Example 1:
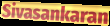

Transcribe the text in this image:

Sivasankaran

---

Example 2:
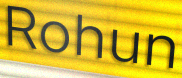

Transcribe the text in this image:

Rohun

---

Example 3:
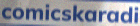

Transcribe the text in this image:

comicskaradi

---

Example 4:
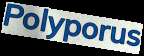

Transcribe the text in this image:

Polyporus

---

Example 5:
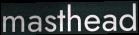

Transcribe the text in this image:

masthead